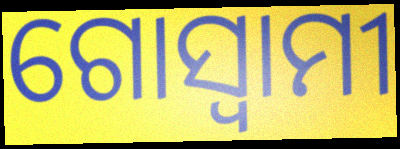
ଗୋସ୍ୱାମୀ